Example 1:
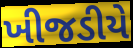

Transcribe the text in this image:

ખીજડીયે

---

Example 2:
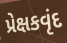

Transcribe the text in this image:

પ્રેક્ષકવૃંદ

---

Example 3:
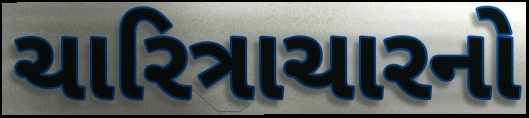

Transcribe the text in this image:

ચારિત્રાચારનો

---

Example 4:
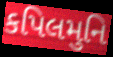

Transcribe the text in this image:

કપિલમુનિ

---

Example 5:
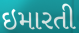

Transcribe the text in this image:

ઇમારતી